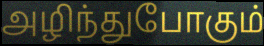
அழிந்துபோகும்